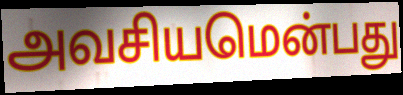
அவசியமென்பது